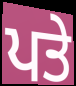
ਪਤੇ